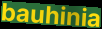
bauhinia